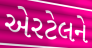
એરટેલને